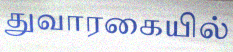
துவாரகையில்